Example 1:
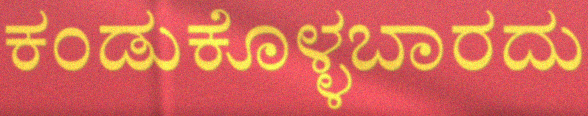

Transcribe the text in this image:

ಕಂಡುಕೊಳ್ಳಬಾರದು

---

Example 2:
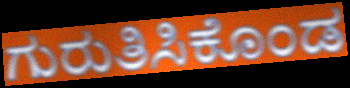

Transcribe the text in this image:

ಗುರುತಿಸಿಕೊಂಡ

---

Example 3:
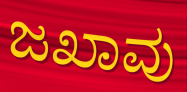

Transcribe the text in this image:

ಜಖಾವು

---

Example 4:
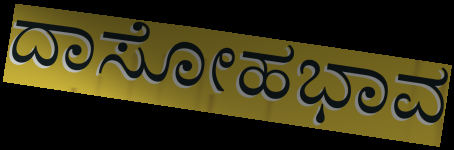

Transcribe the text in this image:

ದಾಸೋಹಭಾವ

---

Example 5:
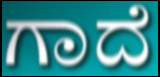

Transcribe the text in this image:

ಗಾದೆ